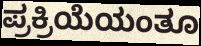
ಪ್ರಕ್ರಿಯೆಯಂತೂ